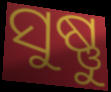
ସୁଷ୍ଣୁ